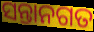
ସନ୍ତାନଗତ